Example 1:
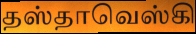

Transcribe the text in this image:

தஸ்தாவெஸ்கி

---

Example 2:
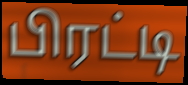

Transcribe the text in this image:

பிரட்டி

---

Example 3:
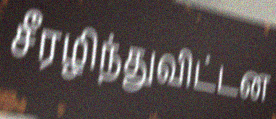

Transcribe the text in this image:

சீரழிந்துவிட்டன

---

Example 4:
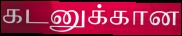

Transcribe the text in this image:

கடனுக்கான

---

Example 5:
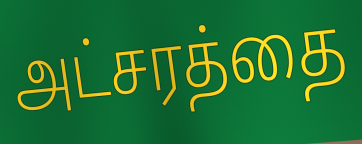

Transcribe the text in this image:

அட்சரத்தை